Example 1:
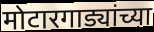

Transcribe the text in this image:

मोटारगाड्यांच्या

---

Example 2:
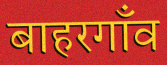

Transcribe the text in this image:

बाहरगाँव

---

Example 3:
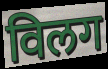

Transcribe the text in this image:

विलग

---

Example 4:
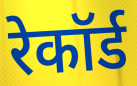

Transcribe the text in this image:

रेकॉर्ड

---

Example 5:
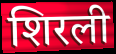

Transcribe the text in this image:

शिरली